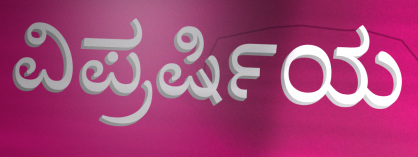
ವಿಪ್ರರ್ಷಿಯ